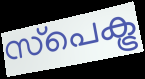
സ്‌പെക്ട്ര